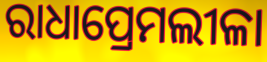
ରାଧାପ୍ରେମଲୀଳା